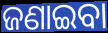
ଜଣାଇବା